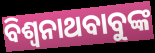
ବିଶ୍ୱନାଥବାବୁଙ୍କ